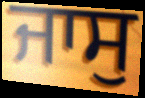
ਜਾਸੁ